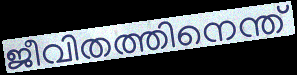
ജീവിതത്തിനെന്ത്